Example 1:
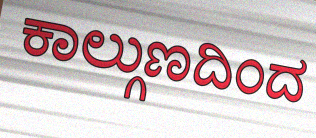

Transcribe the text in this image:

ಕಾಲ್ಗುಣದಿಂದ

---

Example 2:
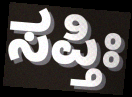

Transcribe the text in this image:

ಸಪ್ತಿಃ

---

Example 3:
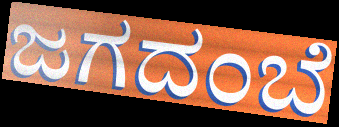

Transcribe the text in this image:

ಜಗದಂಬೆ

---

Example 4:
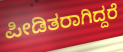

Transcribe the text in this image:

ಪೀಡಿತರಾಗಿದ್ದರೆ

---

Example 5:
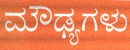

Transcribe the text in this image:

ಮೌಢ್ಯಗಳು